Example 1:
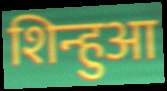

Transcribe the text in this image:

शिन्‍हुआ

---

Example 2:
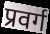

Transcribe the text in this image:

प्रवर्ग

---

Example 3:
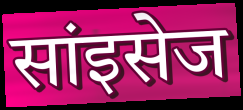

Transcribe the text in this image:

सांइसेज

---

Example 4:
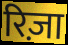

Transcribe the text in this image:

रिज़ा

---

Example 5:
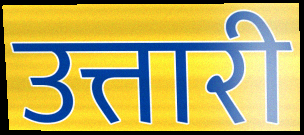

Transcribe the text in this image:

उत्तारी